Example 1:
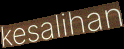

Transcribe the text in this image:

kesalihan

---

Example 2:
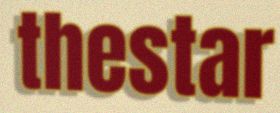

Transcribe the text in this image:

thestar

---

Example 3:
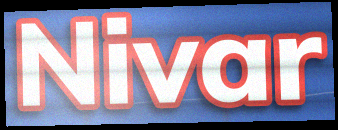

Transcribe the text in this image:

Nivar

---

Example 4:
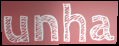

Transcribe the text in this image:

unha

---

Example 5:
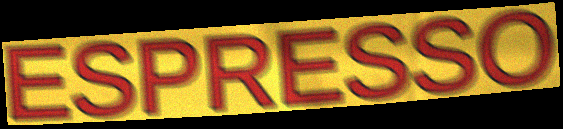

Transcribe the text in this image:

ESPRESSO